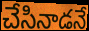
చేసినాడనే